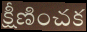
క్షీణించక